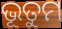
ଭୂତୁମ